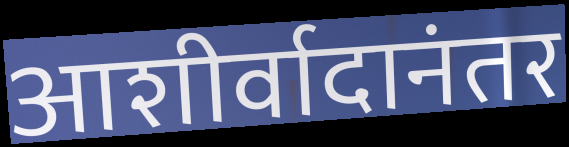
आशीर्वादानंतर